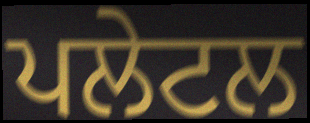
ਪਲੇਟਲ